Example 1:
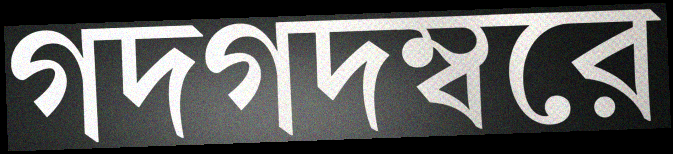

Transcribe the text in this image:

গদগদম্বরে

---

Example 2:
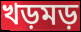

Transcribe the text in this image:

খড়মড়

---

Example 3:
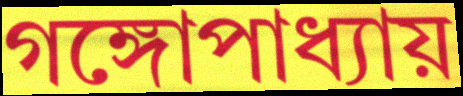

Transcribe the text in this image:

গঙ্গোপাধ্যায়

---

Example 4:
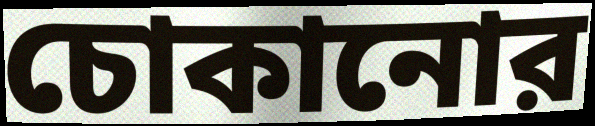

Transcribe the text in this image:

চোকানোর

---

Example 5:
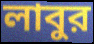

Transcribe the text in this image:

লাবুর